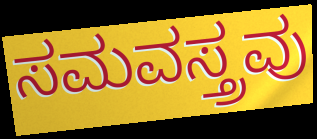
ಸಮವಸ್ತ್ರವು